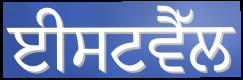
ਈਸਟਵੈੱਲ